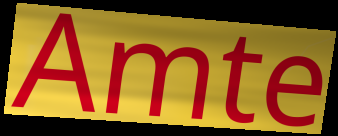
Amte